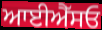
ਆਈਐੱਸਓ